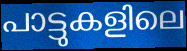
പാട്ടുകളിലെ